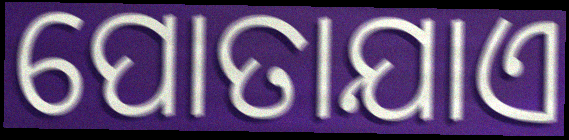
ପୋତାଯାଏ